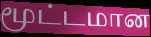
மூட்டமான